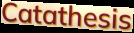
Catathesis